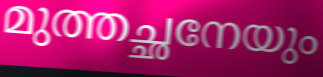
മുത്തച്ഛനേയും